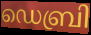
ഡെബ്രി